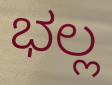
ಭಲ್ಲ